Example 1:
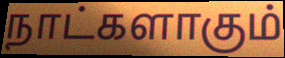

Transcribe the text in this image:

நாட்களாகும்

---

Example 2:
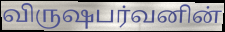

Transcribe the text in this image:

விருஷபர்வனின்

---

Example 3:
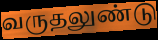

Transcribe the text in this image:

வருதலுண்டு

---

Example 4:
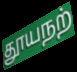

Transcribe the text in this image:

தூயநற்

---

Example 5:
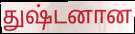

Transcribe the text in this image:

துஷ்டனான